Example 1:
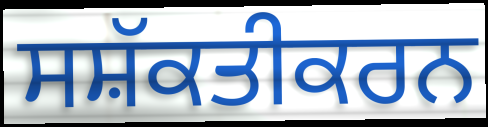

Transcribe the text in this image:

ਸਸ਼ੱਕਤੀਕਰਨ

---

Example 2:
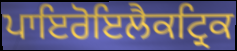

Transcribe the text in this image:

ਪਾਇਰੋਇਲੈਕਟ੍ਰਿਕ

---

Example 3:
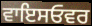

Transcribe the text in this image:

ਵਾਇਸਓਵਰ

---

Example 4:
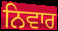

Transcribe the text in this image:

ਨਿਵਾਰ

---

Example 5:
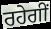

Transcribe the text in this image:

ਰਹੇਗੀਂ